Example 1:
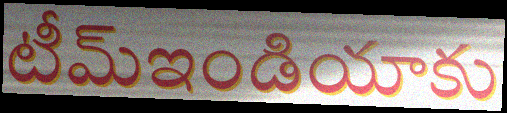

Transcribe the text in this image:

టీమ్ఇండియాకు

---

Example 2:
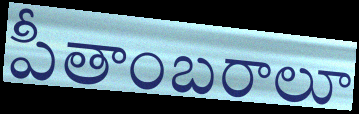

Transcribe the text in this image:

పీతాంబరాలూ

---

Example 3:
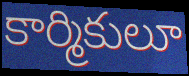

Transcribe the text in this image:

కార్మికులూ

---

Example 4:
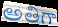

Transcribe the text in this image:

అతిగా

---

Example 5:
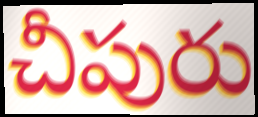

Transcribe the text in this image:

చీపురు